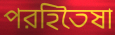
পরহিতৈষা